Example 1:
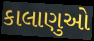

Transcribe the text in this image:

કાલાણુઓ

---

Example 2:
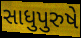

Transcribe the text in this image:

સાધુપુરુષે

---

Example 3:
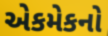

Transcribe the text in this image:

એકમેકનો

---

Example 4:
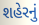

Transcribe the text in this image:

શહેરનું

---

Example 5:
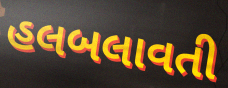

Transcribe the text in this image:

હલબલાવતી